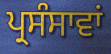
ਪ੍ਰਸੰਸਾਵਾਂ